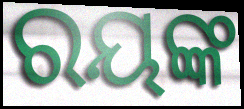
ରୟଙ୍କ